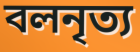
বলনৃত্য